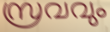
സ്രവവും